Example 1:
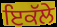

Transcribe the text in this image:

ਇਕੱਲੇ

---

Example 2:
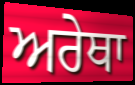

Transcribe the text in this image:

ਅਰੇਥਾ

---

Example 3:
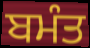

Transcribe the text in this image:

ਬਮੰਤ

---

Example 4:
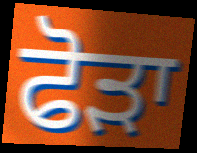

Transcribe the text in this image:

ਫੋੜਾ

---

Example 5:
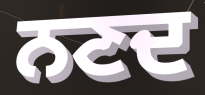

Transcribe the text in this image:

ਨਣਦ